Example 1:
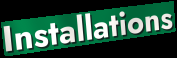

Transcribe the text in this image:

Installations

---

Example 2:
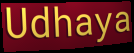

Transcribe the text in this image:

Udhaya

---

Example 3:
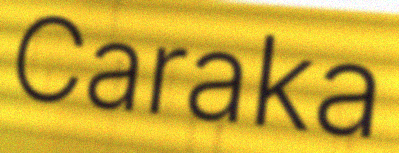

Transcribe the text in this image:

Caraka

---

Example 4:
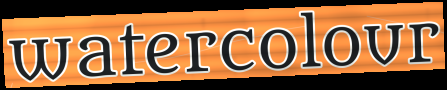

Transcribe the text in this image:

watercolour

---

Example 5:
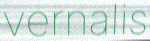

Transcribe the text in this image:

vernalis